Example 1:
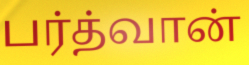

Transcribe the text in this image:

பர்த்வான்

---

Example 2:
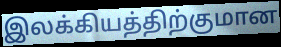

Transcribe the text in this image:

இலக்கியத்திற்குமான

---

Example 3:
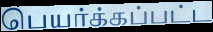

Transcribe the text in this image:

பெயர்க்கப்பட்ட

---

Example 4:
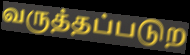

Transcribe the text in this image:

வருத்தப்படுற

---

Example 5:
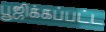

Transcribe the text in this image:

பூஜிக்கப்பட்ட